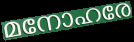
മനോഹരേ